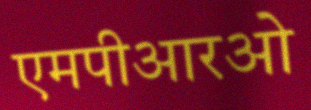
एमपीआरओ